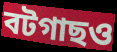
বটগাছও